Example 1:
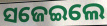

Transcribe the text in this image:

ସଜେଇଲେ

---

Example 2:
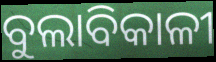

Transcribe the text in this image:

ବୁଲାବିକାଳୀ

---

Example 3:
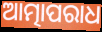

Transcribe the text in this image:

ଆତ୍ମାପରାଧ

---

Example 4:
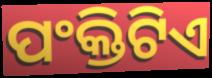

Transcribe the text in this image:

ପଂକ୍ତିଟିଏ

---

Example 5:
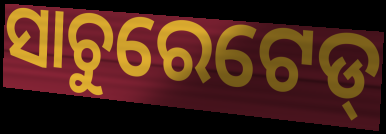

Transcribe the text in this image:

ସାଚୁରେଟେଡ୍